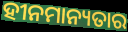
ହୀନମାନ୍ୟତାର